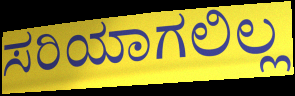
ಸರಿಯಾಗಲಿಲ್ಲ